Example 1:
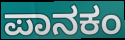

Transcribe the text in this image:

ಪಾನಕಂ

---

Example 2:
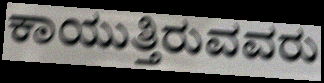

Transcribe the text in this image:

ಕಾಯುತ್ತಿರುವವರು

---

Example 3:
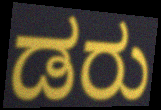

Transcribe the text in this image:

ಡರು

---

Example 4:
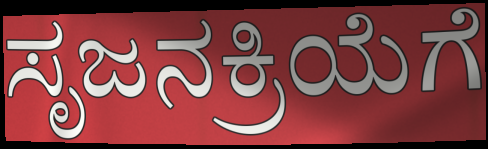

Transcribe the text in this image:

ಸೃಜನಕ್ರಿಯೆಗೆ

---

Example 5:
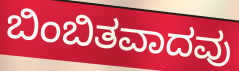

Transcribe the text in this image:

ಬಿಂಬಿತವಾದವು